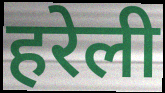
हरेली